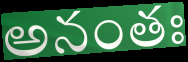
అనంతః